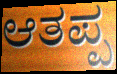
ಆತಪ್ಪ